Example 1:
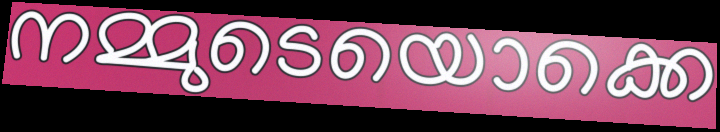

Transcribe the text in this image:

നമ്മുടെയൊക്കെ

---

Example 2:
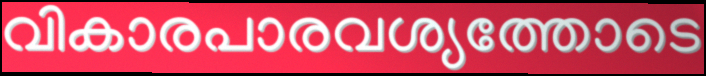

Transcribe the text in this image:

വികാരപാരവശ്യത്തോടെ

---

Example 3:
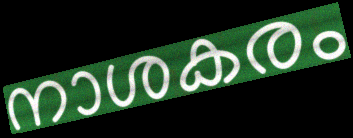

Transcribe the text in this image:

നാശകരം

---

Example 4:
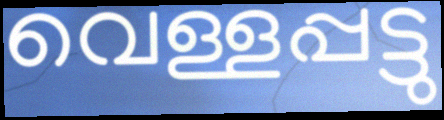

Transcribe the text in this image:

വെള്ളപ്പട്ടു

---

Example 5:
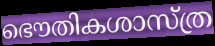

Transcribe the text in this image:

ഭൌതികശാസ്ത്ര